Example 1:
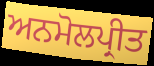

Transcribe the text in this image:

ਅਨਮੋਲਪ੍ਰੀਤ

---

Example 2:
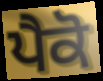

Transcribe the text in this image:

ਪੈਕੋ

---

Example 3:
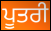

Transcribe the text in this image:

ਪੂਤਰੀ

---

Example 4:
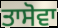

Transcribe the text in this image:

ਤਾਸੋਵਾ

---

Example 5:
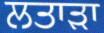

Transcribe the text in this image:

ਲਤਾੜਾ